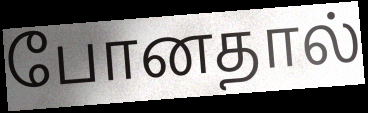
போனதால்